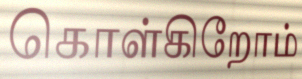
கொள்கிறோம்